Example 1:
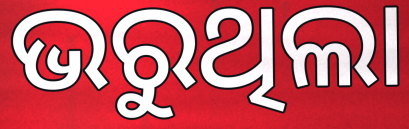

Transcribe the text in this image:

ଭରୁଥିଲା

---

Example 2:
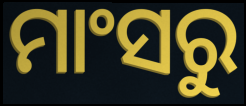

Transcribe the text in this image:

ମାଂସରୁ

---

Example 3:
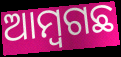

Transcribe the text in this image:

ଆମ୍ବଗଛ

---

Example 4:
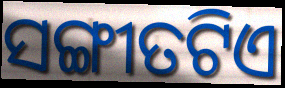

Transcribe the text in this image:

ସଙ୍ଗୀତଟିଏ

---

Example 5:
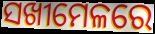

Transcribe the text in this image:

ସଖୀମେଳରେ